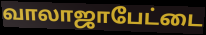
வாலாஜாபேட்டை